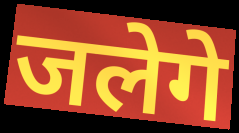
जलेगे